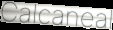
Calcaneal